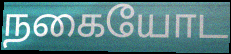
நகையோட